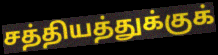
சத்தியத்துக்குக்